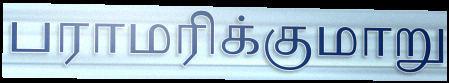
பராமரிக்குமாறு